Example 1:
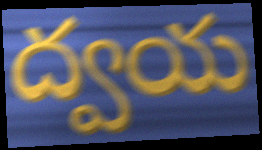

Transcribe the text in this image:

ద్వయ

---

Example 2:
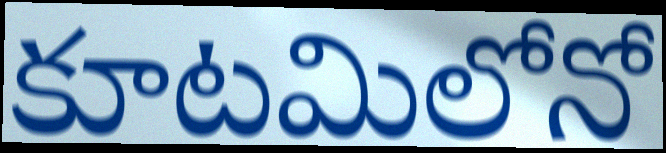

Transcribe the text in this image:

కూటమిలోనో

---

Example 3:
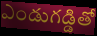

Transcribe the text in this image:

ఎండుగడ్డితో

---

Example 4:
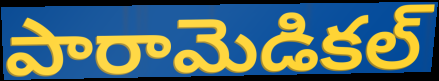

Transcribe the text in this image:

పారామెడికల్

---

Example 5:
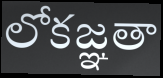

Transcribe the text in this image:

లోకజ్ఞతా